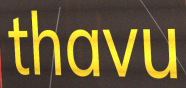
thavu